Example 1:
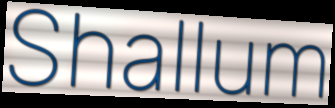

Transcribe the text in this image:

Shallum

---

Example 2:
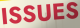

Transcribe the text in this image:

ISSUES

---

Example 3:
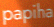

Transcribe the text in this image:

papiha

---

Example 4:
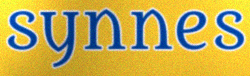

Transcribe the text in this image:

synnes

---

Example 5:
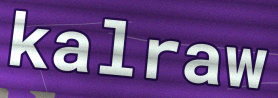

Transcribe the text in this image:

kalraw